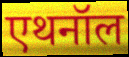
एथनॉल